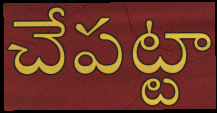
చేపట్టా